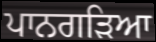
ਪਾਨਗੜਿਆ